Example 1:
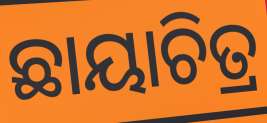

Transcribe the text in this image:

ଛାୟାଚିତ୍ର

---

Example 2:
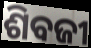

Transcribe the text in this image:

ଶିବଜୀ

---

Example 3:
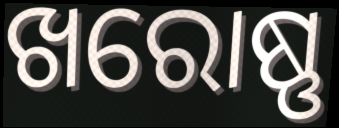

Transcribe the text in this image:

ଖରୋଷ୍ଣ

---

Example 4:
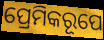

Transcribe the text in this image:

ପ୍ରେମିକରୂପେ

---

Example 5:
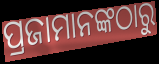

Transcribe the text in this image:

ପ୍ରଜାମାନଙ୍କଠାରୁ